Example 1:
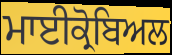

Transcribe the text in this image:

ਮਾਈਕ੍ਰੋਬਿਅਲ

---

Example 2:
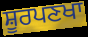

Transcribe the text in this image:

ਸ਼ੂਰਪਣਖਾ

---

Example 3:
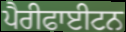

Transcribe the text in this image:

ਪੈਰੀਫਾਈਟਨ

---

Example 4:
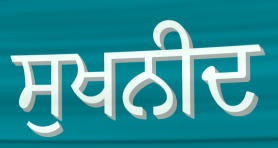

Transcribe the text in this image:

ਸੁਖਨੀਦ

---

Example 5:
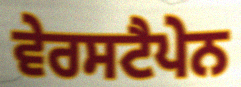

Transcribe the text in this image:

ਵੇਰਸਟੈਪੇਨ